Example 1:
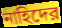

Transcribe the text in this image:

নাহিদের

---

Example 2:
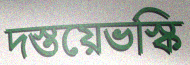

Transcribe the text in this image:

দস্তয়েভস্কি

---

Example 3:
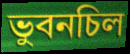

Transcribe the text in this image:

ভুবনচিল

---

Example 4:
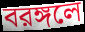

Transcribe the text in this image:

বরঙ্গলে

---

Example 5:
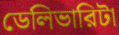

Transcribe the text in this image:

ডেলিভারিটা